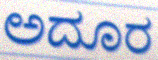
ಅದೂರ